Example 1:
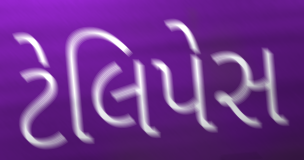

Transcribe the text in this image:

ટેલિપેસ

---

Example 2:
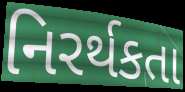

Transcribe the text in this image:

નિરર્થકતા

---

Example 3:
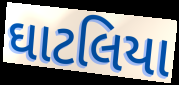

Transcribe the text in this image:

ઘાટલિયા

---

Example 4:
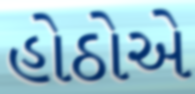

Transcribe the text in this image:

હોઠોએ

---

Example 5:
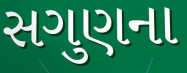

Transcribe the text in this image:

સગુણના